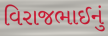
વિરાજભાઈનું